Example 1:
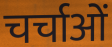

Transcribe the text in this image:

चर्चाओं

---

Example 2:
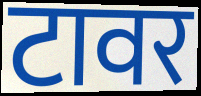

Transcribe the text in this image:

टावर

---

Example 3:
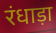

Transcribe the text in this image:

रंधाड़ा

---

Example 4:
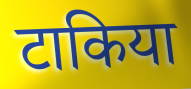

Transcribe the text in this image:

टाकिया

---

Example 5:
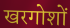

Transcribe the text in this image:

खरगोशों